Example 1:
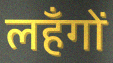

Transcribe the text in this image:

लहँगों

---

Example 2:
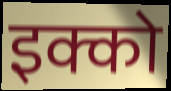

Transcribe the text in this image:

इक्को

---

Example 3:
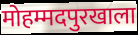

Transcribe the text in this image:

मोहम्मदपुरखाला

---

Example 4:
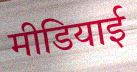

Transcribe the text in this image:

मीडियाई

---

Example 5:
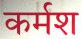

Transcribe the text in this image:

कर्मश